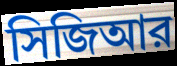
সিজিআর